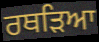
ਰਥੜਿਆ